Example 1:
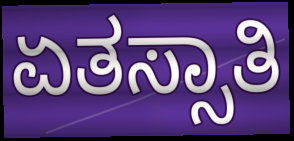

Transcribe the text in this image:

ಏತಸ್ಸಾತಿ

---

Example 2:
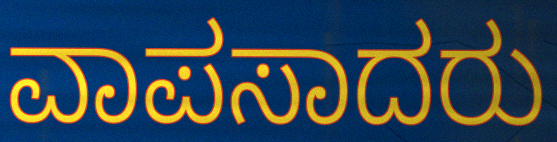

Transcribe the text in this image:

ವಾಪಸಾದರು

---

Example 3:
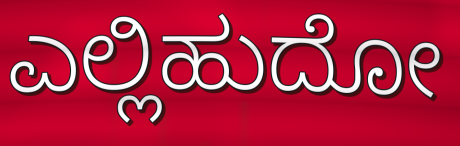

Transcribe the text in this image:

ಎಲ್ಲಿಹುದೋ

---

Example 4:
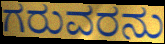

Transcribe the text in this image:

ಗರುವರನು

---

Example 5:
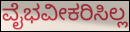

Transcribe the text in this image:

ವೈಭವೀಕರಿಸಿಲ್ಲ